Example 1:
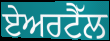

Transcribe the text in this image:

ਏਅਰਟੈੱਲ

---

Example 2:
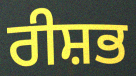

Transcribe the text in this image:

ਰੀਸ਼ਭ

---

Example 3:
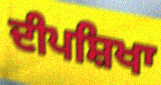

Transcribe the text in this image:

ਦੀਪਸ਼ਿਖਾ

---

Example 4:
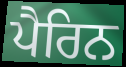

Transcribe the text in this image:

ਪੈਰਿਨ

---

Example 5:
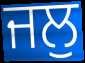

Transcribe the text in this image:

ਜਲੁ